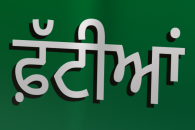
ਫ਼ੱਟੀਆਂ